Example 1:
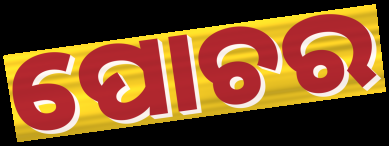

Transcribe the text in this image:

ପୋଚର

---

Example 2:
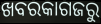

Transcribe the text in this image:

ଖବରକାଗଜରୁ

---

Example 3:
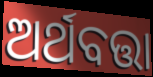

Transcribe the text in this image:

ଅର୍ଥବତ୍ତା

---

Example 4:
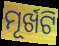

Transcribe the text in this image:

ମୂର୍ଖଟି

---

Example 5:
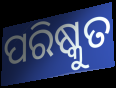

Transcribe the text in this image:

ପରିଷ୍କୁତ